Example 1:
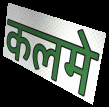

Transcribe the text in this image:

कलमे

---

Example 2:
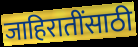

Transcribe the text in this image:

जाहिरातींसाठी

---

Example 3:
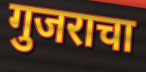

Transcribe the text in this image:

गुजराचा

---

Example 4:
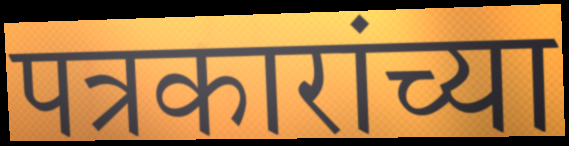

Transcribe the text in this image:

पत्रकारांच्या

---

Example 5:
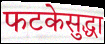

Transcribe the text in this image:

फटकेसुद्धा